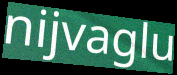
nijvaglu